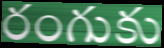
రంగుకు